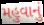
મહુવાનું